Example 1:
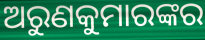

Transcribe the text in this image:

ଅରୁଣକୁମାରଙ୍କର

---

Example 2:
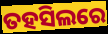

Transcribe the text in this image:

ତହସିଲରେ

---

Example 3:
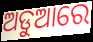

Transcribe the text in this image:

ଅଡୁଆରେ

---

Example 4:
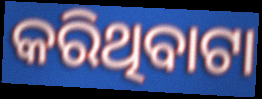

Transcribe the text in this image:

କରିଥିବାଟା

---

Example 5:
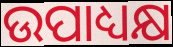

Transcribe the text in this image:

ଉପାଧ୍ୟକ୍ଷ